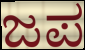
ಜಪ